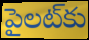
పైలట్‌కు